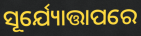
ସୂର୍ଯ୍ୟୋତ୍ତାପରେ